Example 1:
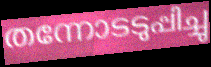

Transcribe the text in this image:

തന്നോടടുപ്പിച്ചു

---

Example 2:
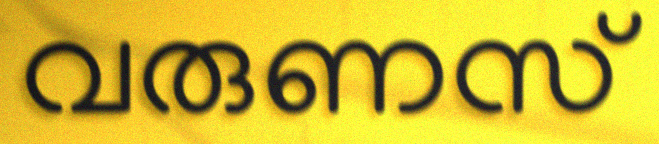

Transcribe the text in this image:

വരുണസ്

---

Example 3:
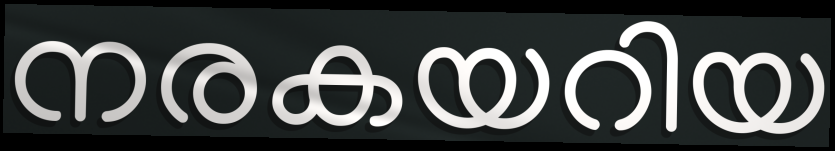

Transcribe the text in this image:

നരകയറിയ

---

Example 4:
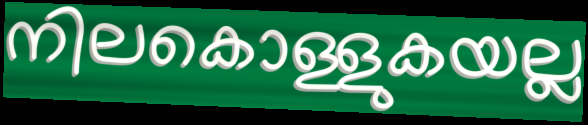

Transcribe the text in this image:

നിലകൊള്ളുകയല്ല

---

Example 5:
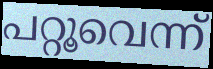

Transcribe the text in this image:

പറ്റൂവെന്ന്